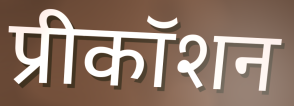
प्रीकॉशन